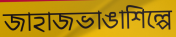
জাহাজভাঙাশিল্পে